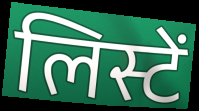
लिस्टें